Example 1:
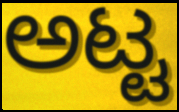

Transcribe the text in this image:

ಅಟ್ಟ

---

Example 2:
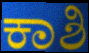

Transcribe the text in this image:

ಕಾಶಿ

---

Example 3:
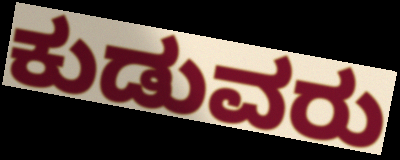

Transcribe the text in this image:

ಕುಡುವರು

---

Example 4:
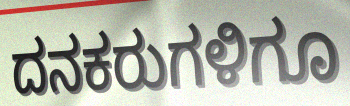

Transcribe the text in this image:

ದನಕರುಗಳಿಗೂ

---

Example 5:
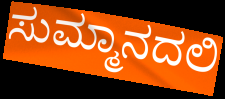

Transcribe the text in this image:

ಸುಮ್ಮಾನದಲಿ